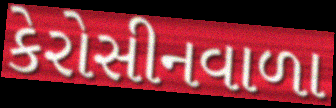
કેરોસીનવાળા